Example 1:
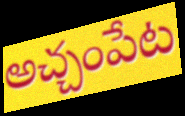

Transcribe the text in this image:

అచ్చంపేట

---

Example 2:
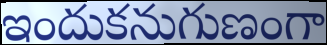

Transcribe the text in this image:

ఇందుకనుగుణంగా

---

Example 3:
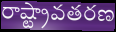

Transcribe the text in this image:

రాష్ట్రావతరణ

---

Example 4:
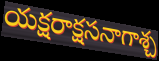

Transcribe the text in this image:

యక్షరాక్షసనాగాశ్చ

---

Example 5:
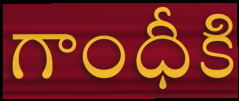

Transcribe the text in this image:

గాంధీకి